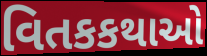
વિતકકથાઓ